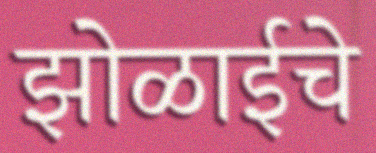
झोळाईचे